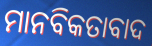
ମାନବିକତାବାଦ